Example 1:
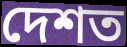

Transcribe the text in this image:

দেশত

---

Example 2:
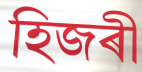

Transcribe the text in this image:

হিজৰী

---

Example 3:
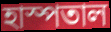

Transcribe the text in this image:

হাস্পতাল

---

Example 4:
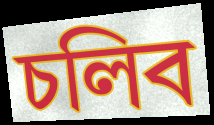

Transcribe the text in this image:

চলিব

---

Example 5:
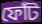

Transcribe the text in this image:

ফোঁট